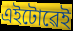
এইটোৱেই